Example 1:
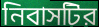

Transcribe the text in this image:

নিবাসটির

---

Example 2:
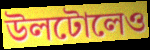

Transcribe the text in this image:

উলটোলেও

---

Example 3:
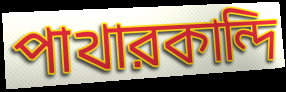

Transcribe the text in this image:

পাথারকান্দি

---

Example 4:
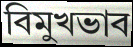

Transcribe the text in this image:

বিমুখভাব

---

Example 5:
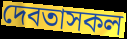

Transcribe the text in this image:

দেবতাসকল